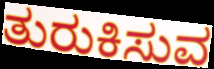
ತುರುಕಿಸುವ